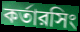
কর্তারসিং